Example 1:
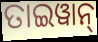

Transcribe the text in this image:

ତାଇୱାନ୍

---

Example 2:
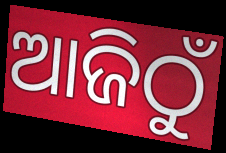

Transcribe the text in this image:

ଆଜିଠୁଁ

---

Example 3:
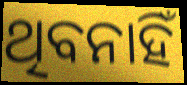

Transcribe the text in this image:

ଥିବନାହିଁ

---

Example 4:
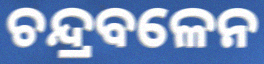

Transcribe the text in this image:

ଚନ୍ଦ୍ରବଳେନ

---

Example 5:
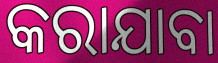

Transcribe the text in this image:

କରାଯାବା